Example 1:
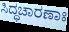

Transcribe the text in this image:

ಸಿದ್ಧಚಾರಣಾಃ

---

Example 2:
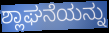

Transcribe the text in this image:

ಶ್ಲಾಘನೆಯನ್ನು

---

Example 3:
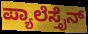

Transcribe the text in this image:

ಪ್ಯಾಲೆಸ್ತೈನ್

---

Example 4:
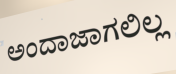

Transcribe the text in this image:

ಅಂದಾಜಾಗಲಿಲ್ಲ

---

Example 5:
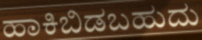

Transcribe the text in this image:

ಹಾಕಿಬಿಡಬಹುದು